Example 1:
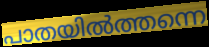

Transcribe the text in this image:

പാതയിൽത്തന്നെ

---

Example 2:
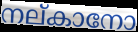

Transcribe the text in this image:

നല്കാനോ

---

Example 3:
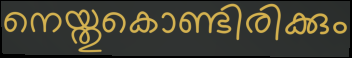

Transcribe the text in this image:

നെയ്തുകൊണ്ടിരിക്കും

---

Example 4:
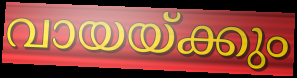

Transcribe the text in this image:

വായയ്ക്കും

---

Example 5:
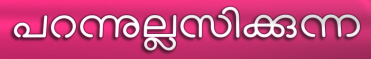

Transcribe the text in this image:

പറന്നുല്ലസിക്കുന്ന